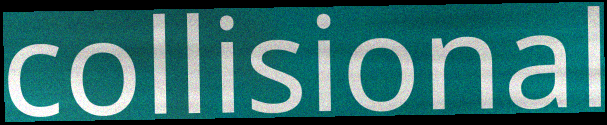
collisional